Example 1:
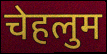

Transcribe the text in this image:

चेहलुम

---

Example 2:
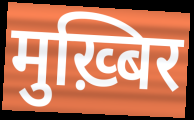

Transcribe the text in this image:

मुख़्बिर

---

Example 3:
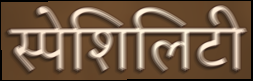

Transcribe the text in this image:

स्पेशिलिटी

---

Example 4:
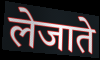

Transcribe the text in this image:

लेजाते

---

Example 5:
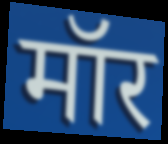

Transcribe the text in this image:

मॉर